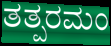
ತತ್ಪರಮಂ